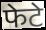
फेटे